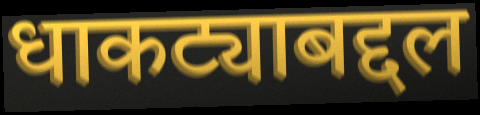
धाकट्याबद्दल